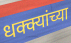
धक्क्यांच्या